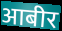
आबीर